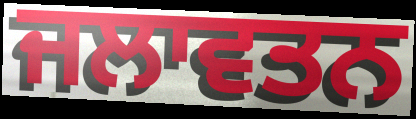
ਜਲਾਵਤਨ